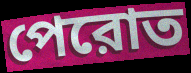
পেরোত